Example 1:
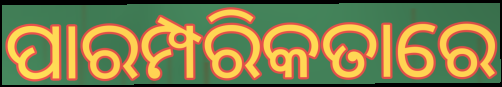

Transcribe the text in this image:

ପାରମ୍ପରିକତାରେ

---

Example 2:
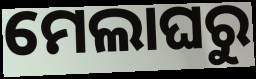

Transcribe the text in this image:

ମେଲାଘରୁ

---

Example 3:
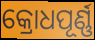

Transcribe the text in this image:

କ୍ରୋଧପୂର୍ଣ୍ଣ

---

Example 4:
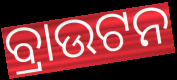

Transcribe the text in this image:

ବ୍ରାଉଟନ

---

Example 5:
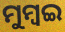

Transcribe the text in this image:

ମୁମ୍ୱଇ